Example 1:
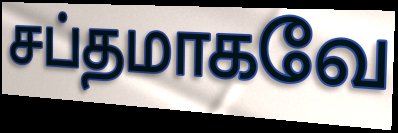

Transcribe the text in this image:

சப்தமாகவே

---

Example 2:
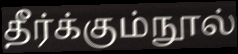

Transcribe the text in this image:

தீர்க்கும்நூல்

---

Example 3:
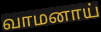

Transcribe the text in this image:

வாமனாய்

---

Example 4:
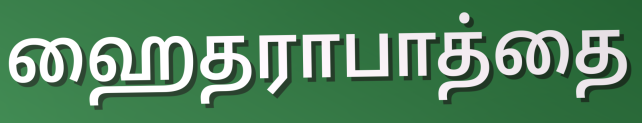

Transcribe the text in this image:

ஹைதராபாத்தை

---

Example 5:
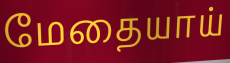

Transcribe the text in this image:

மேதையாய்